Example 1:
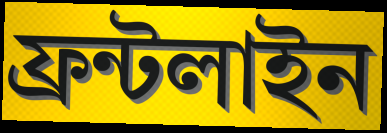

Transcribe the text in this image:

ফ্রন্টলাইন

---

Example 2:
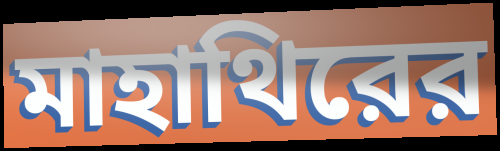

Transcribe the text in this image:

মাহাথিরের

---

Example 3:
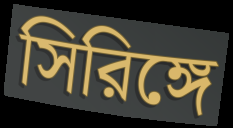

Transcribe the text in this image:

সিরিঙ্গে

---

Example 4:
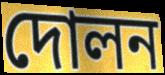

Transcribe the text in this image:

দোলন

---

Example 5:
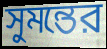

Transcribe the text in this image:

সুমন্তের